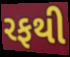
રફથી